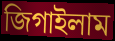
জিগাইলাম